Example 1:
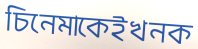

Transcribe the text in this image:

চিনেমাকেইখনক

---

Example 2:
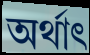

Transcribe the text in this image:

অৰ্থাৎ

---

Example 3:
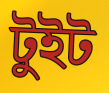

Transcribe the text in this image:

টুইট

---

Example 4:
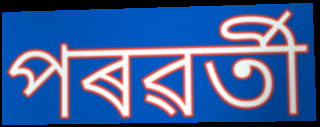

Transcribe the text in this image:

পৰৱৰ্তী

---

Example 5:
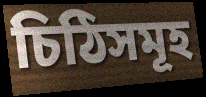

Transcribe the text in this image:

চিঠিসমূহ